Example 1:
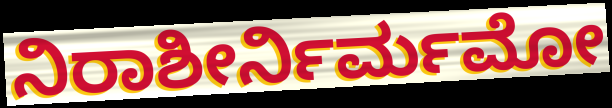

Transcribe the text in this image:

ನಿರಾಶೀರ್ನಿರ್ಮಮೋ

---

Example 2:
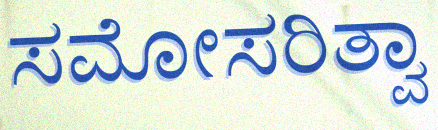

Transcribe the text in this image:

ಸಮೋಸರಿತ್ವಾ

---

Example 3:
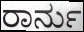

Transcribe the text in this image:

ರಾರ್ನು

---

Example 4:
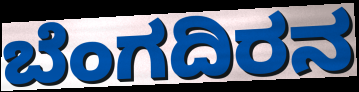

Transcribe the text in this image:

ಬೆಂಗದಿರನ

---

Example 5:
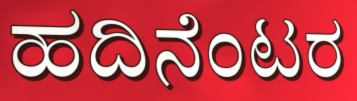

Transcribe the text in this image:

ಹದಿನೆಂಟರ